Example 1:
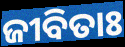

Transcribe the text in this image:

ଜୀବିତାଃ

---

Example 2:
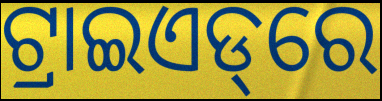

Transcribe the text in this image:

ଟ୍ରାଇଏଡ୍‌ରେ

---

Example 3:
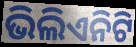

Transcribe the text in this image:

ଭିଲିଏନିଟି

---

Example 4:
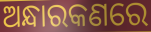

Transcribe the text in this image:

ଅନ୍ଧାରକଣରେ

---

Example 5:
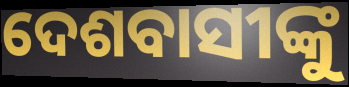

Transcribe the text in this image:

ଦେଶବାସୀଙ୍କୁ